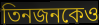
তিনজনকেও